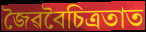
জৈৱবৈচিত্ৰতাত